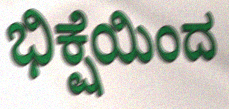
ಭಿಕ್ಷೆಯಿಂದ